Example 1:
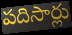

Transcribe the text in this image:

పదిసార్లు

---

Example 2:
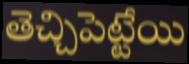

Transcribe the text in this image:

తెచ్చిపెట్టేయి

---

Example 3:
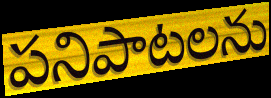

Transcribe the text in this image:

పనిపాటలను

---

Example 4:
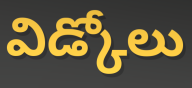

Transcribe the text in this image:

విడ్కోలు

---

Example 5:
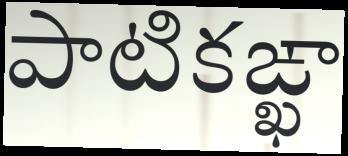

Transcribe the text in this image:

పాటికఙ్ఖా